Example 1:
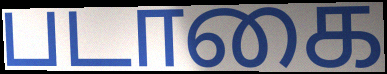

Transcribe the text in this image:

படாகை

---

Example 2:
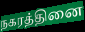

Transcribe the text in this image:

நகரத்தினை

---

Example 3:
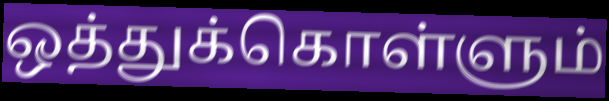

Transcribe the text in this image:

ஒத்துக்கொள்ளும்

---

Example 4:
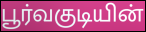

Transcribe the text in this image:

பூர்வகுடியின்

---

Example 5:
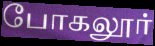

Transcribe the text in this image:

போகலூர்